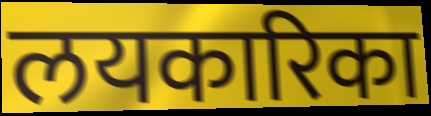
लयकारिका